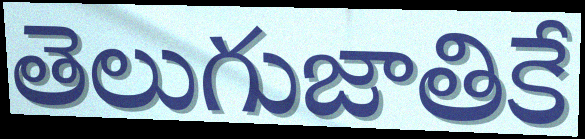
తెలుగుజాతికే